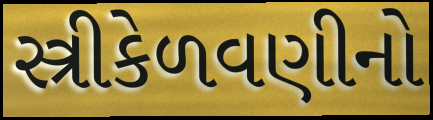
સ્ત્રીકેળવણીનો